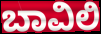
ಬಾವಿಲಿ